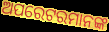
ଅପରେଟରମାନଙ୍କ